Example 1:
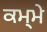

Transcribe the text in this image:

ਕਮ੍ਮੇ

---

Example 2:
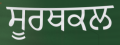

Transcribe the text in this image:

ਸੂਰਥਕਲ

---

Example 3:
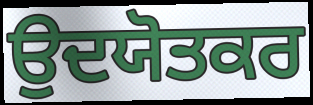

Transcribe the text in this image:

ਉਦਯੋਤਕਰ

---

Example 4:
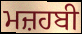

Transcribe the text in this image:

ਮਜ਼ਹਬੀ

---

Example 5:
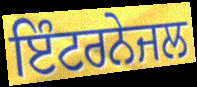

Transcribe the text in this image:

ਇੰਟਰਨੇਜਲ